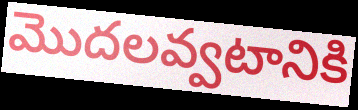
మొదలవ్వటానికి